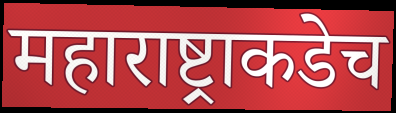
महाराष्ट्राकडेच